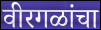
वीरगळांचा